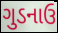
ગુડનાઉ